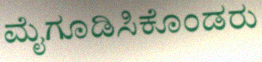
ಮೈಗೂಡಿಸಿಕೊಂಡರು